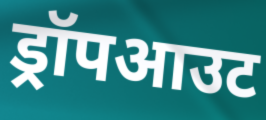
ड्रॉपआउट